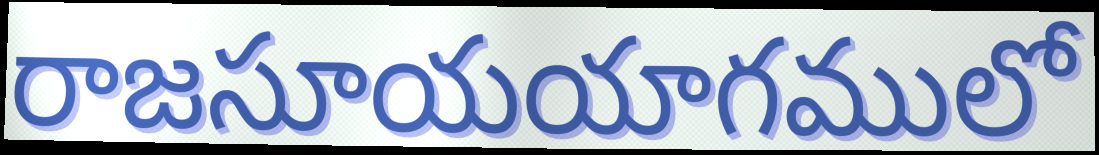
రాజసూయయాగములో